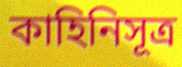
কাহিনিসূত্র